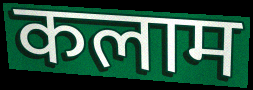
कलाम